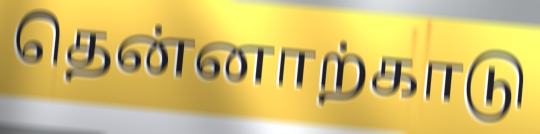
தென்னாற்காடு